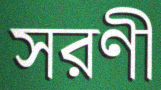
সরণী